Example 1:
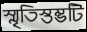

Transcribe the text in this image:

স্মৃতিস্তম্ভটি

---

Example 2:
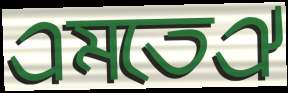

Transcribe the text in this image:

এমতেঐ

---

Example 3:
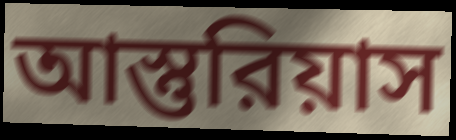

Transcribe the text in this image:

আস্তুরিয়াস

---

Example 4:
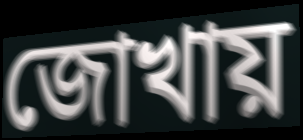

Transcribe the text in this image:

জোখায়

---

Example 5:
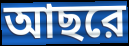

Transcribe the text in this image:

আছরে